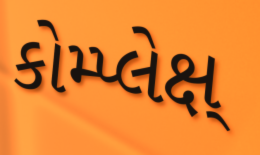
કોમ્પ્લેક્ષ્